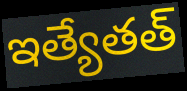
ఇత్యేతత్